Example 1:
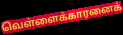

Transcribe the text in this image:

வெள்ளைக்காரனைக்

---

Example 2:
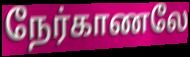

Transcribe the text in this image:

நேர்காணலே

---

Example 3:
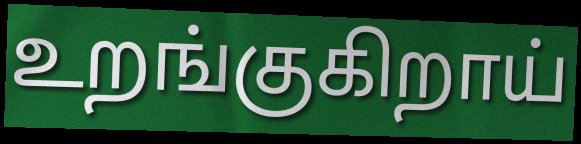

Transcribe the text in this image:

உறங்குகிறாய்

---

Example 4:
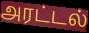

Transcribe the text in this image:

அரட்டல்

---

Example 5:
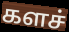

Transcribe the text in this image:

களச்